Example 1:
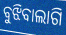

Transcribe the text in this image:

ବୁଝିବାଲାଗି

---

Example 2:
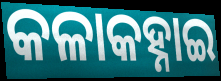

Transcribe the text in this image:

କଳାକହ୍ନାଇ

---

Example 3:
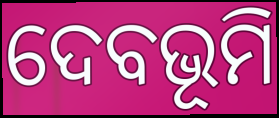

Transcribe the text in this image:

ଦେବଭୂମି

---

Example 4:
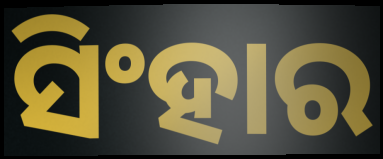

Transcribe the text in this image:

ସିଂହାର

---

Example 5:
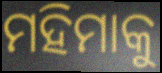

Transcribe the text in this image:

ମହିମାକୁ